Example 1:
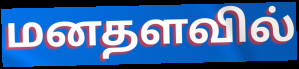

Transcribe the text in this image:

மனதளவில்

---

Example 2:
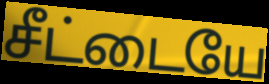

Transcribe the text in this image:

சீட்டையே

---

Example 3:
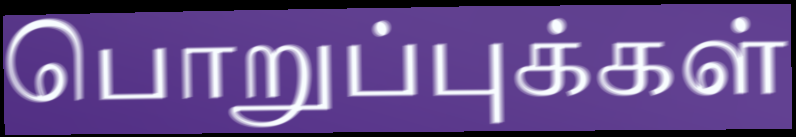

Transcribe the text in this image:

பொறுப்புக்கள்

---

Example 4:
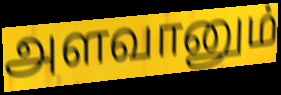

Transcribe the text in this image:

அளவானும்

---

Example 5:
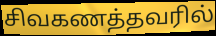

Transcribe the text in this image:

சிவகணத்தவரில்